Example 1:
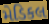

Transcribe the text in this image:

મેડિકલ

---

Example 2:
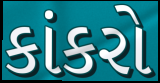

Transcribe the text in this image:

કાંકરો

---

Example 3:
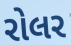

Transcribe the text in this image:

રોલર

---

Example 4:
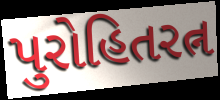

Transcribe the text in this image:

પુરોહિતરત્ન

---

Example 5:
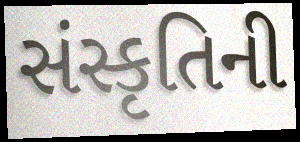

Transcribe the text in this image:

સંસ્કૃતિની